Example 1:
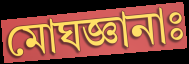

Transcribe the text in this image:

মোঘজ্ঞানাঃ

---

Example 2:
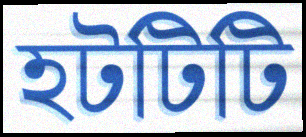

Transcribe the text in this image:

হটটিটি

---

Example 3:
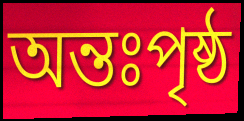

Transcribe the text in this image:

অন্তঃপৃষ্ঠ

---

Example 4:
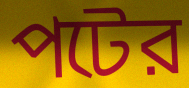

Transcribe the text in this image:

পটের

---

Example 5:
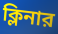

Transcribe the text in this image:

ক্লিনার